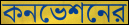
কনভেশনের